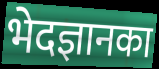
भेदज्ञानका